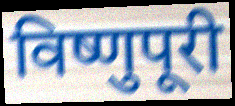
विष्णुपूरी